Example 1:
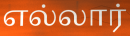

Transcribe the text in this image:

எல்லார்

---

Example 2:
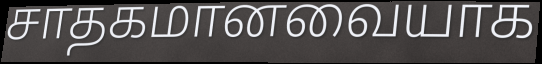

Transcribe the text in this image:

சாதகமானவையாக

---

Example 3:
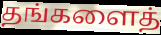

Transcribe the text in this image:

தங்களைத்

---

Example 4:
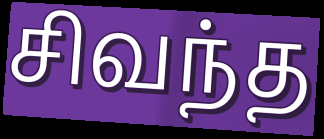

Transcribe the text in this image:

சிவந்த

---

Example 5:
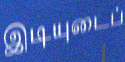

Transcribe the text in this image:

இடியுடைப்